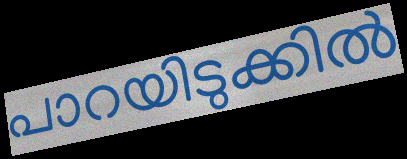
പാറയിടുക്കിൽ